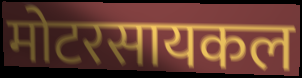
मोटरसायकल